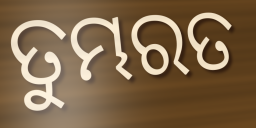
ତୁମ୍ଭରତ